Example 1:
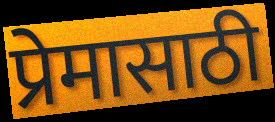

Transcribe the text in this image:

प्रेमासाठी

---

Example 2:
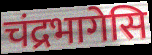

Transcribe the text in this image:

चंद्रभागेसि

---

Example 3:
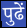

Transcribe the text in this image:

पुढें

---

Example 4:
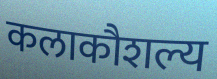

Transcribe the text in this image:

कलाकौशल्य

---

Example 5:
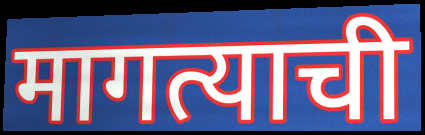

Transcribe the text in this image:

मागत्याची